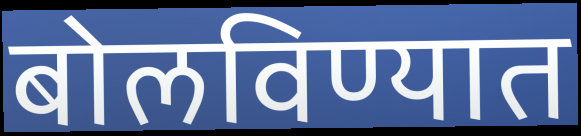
बोलविण्यात